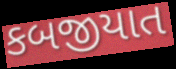
કબજીયાત